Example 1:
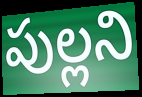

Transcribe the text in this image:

పుల్లని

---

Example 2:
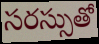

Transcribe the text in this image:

సరస్సుతో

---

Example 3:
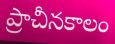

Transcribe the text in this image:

ప్రాచీనకాలం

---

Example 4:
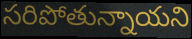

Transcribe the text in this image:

సరిపోతున్నాయని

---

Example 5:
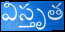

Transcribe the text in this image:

విస్తృత